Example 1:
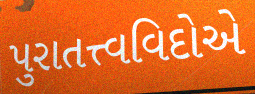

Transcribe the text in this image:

પુરાતત્ત્વવિદોએ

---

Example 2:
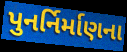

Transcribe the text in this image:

પુનર્નિર્માણના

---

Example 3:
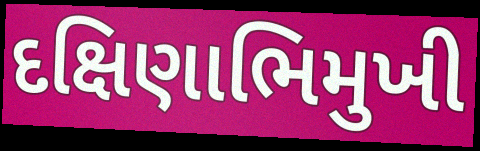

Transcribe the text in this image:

દક્ષિણાભિમુખી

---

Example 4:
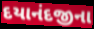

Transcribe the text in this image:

દયાનંદજીના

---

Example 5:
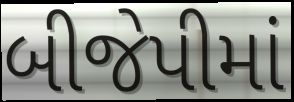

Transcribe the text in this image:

બીજેપીમાં